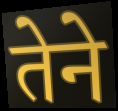
तेने